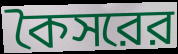
কৈসরের